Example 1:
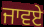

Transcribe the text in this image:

ਜਾਵਏ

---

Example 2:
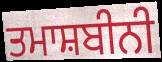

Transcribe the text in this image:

ਤਮਾਸ਼ਬੀਨੀ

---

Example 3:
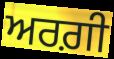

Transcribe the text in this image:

ਅਰਗ਼ੀ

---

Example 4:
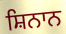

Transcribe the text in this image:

ਸ਼ਿਨਾਨ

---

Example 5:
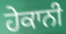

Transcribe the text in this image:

ਹੇਕਾਨੀ